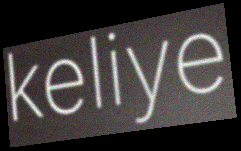
keliye